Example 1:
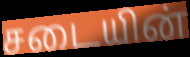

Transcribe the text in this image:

சடையின்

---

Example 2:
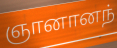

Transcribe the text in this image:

ஞானானந்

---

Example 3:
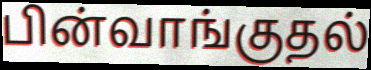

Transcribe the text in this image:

பின்வாங்குதல்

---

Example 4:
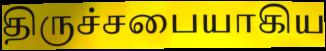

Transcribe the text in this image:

திருச்சபையாகிய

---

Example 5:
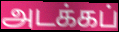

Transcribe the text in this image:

அடக்கப்